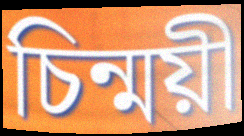
চিন্ময়ী